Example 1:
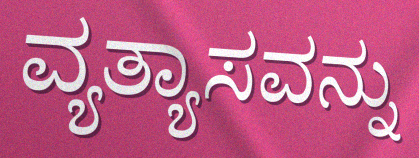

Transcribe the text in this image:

ವ್ಯತ್ಯಾಸವನ್ನು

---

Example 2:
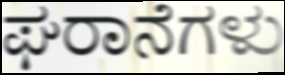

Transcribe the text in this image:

ಘರಾನೆಗಳು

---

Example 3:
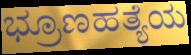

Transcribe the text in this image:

ಭ್ರೂಣಹತ್ಯೆಯ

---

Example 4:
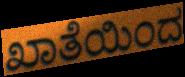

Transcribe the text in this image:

ಖಾತೆಯಿಂದ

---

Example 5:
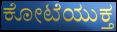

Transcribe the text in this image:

ಕೋಟೆಯುಕ್ತ